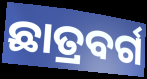
ଛାତ୍ରବର୍ଗ